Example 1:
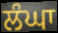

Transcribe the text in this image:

ਲੰਘਾ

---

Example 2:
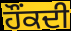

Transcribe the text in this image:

ਹੌਂਕਦੀ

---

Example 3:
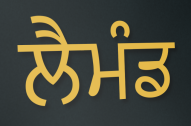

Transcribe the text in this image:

ਲੈਮੰਡ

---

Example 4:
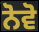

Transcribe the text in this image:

ਨੋਵੋ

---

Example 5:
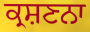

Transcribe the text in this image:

ਕ੍ਰਸ਼ਣਨਾ